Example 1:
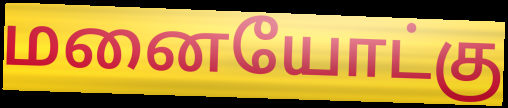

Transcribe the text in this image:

மனையோட்கு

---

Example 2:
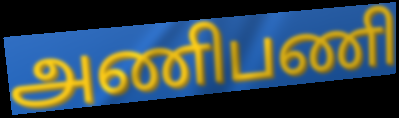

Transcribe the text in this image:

அணிபணி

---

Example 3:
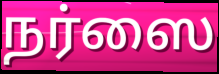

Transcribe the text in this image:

நர்ஸை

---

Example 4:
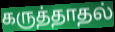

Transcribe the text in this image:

கருத்தாதல்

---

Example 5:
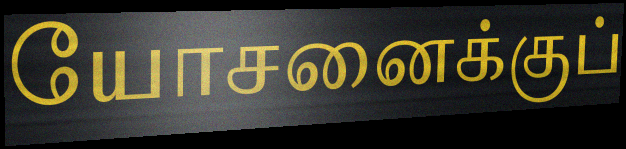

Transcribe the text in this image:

யோசனைக்குப்